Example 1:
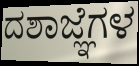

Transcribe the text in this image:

ದಶಾಜ್ಞೆಗಳ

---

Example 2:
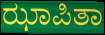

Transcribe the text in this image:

ಝಾಪಿತಾ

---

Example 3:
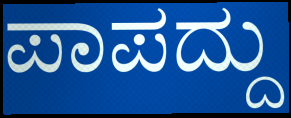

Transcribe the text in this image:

ಪಾಪದ್ದು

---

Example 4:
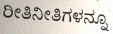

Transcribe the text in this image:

ರೀತಿನೀತಿಗಳನ್ನೂ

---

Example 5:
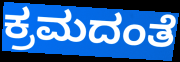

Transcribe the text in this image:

ಕ್ರಮದಂತೆ